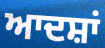
ਆਦਸ਼ਾਂ